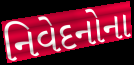
નિવેદનોના